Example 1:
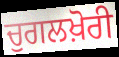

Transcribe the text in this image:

ਚੁਗਲਖ਼ੋਰੀ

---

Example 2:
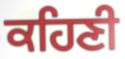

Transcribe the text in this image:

ਕਹਿਣੀ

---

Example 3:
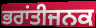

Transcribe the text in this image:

ਭਰਾਂਤੀਜਨਕ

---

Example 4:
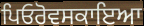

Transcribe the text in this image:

ਪਿਓਰੋਵਸਕਾਇਆ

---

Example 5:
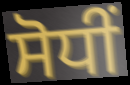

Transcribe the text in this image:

ਸੋਧੀਂ